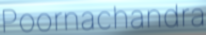
Poornachandra